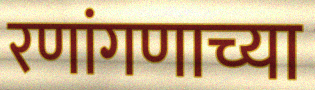
रणांगणाच्या